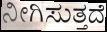
ನೀಗಿಸುತ್ತದೆ